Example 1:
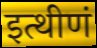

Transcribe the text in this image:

इत्थीणं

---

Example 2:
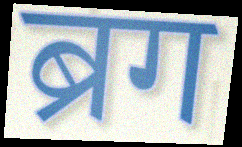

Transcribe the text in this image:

ब्रग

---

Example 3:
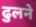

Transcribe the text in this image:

ढुलने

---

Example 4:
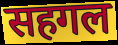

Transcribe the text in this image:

सहगल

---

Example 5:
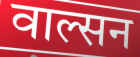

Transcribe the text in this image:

वाल्सन